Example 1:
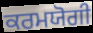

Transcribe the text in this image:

ਕਰਮਯੋਗੀ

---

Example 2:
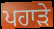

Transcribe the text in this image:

ਪਹਾੜੇ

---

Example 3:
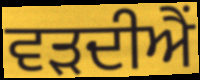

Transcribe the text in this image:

ਵੜਦੀਐਂ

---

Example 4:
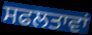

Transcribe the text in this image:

ਸਫਲਤਾਵਾਂ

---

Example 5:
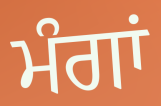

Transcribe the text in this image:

ਮੰਗਾਂ